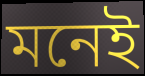
মনেই